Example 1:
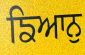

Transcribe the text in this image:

ਙਿਆਨੁ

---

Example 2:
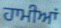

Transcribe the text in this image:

ਹਾਮੀਆਂ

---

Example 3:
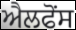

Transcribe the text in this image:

ਐਲਫੋਂਸ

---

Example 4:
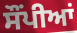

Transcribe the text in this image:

ਸੌਂਪੀਆਂ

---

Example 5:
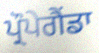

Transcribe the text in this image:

ਪ੍ਰੌਪੇਗੈਂਡਾ